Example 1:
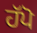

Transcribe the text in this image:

ਹੱਪੋ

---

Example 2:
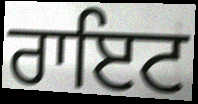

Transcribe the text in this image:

ਰਾਇਟ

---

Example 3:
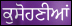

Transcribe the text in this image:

ਕੁਸੋਹਣੀਆਂ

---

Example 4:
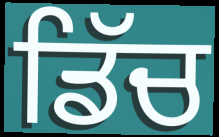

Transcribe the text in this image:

ਡਿੱਚ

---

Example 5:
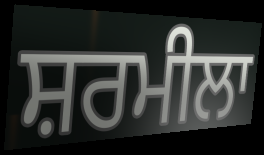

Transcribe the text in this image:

ਸ਼ਰਮੀਲਾ